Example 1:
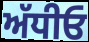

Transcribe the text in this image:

ਅੱਧੀਓ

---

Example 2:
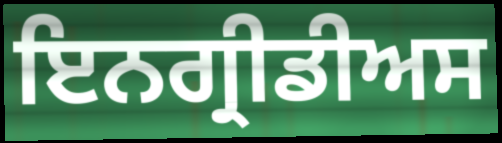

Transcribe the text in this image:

ਇਨਗ੍ਰੀਡੀਅਸ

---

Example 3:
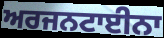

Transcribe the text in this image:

ਅਰਜਨਟਾਈਨਾ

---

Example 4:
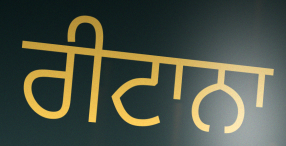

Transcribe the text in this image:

ਰੀਟਾਨਾ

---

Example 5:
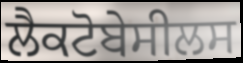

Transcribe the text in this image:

ਲੈਕਟੋਬੇਸੀਲਸ